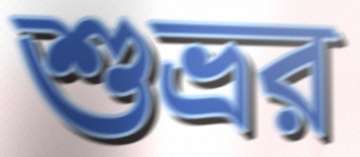
শুভ্রর